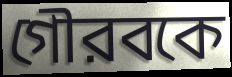
গৌরবকে